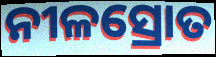
ନୀଳସ୍ରୋତ